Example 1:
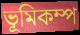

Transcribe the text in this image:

ভূমিকম্প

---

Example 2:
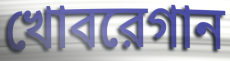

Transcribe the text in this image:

খোবরেগান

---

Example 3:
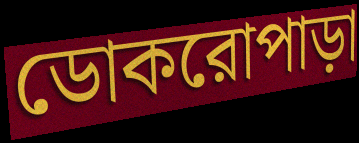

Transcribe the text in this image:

ডোকরোপাড়া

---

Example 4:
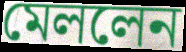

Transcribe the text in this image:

মেললেন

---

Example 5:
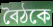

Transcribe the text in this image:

বৈঠকে